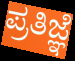
ಪ್ರತಿಜ್ಞೆ